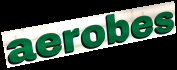
aerobes